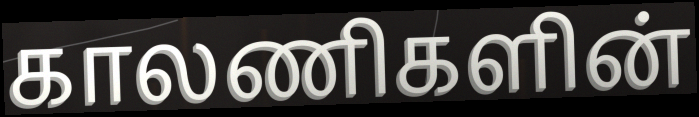
காலணிகளின்